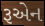
રૂએન